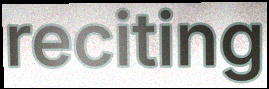
reciting